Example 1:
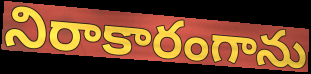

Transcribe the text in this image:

నిరాకారంగాను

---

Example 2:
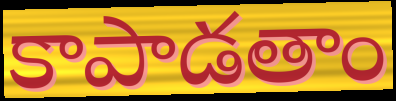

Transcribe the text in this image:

కాపాడతాం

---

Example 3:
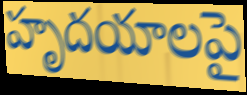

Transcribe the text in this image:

హృదయాలపై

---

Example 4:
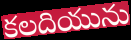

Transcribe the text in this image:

కలదియును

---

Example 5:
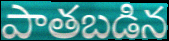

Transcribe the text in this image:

పాతబడిన